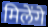
मिलेंगे